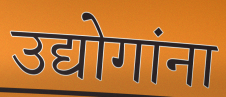
उद्योगांना